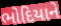
ભોદિયાને